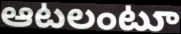
ఆటలంటూ